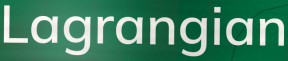
Lagrangian